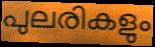
പുലരികളും